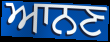
ਆਨਣ